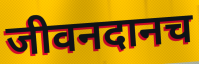
जीवनदानच